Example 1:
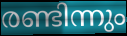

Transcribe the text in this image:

രണ്ടിന്നും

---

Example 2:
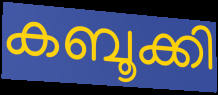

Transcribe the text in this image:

കബൂക്കി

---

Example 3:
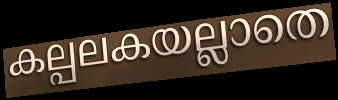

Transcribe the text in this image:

കല്പലകയല്ലാതെ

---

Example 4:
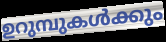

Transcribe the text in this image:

ഉറുമ്പുകൾക്കും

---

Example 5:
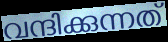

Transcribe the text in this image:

വന്ദിക്കുന്നത്